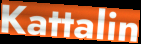
Kattalin